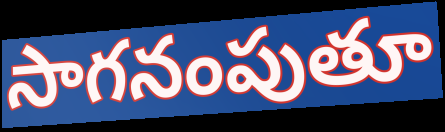
సాగనంపుతూ